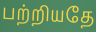
பற்றியதே